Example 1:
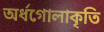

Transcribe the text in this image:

অর্ধগোলাকৃতি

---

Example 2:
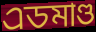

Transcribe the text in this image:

এডমাণ্ড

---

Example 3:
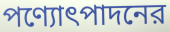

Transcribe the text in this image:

পণ্যোৎপাদনের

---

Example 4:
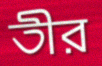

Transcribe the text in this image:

তীর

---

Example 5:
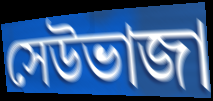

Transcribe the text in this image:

সেউভাজা